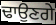
ਢਾਉਣਗੇ